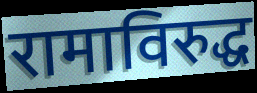
रामाविरुद्ध